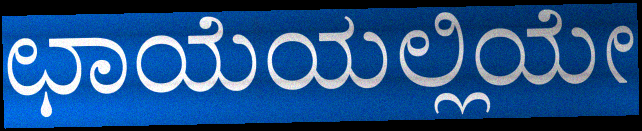
ಛಾಯೆಯಲ್ಲಿಯೇ